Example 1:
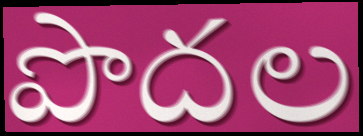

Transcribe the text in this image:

పొదల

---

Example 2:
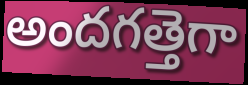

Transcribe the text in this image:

అందగత్తెగా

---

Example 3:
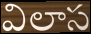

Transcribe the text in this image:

విలాస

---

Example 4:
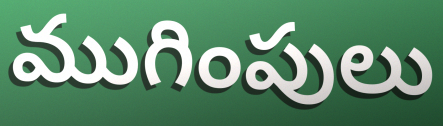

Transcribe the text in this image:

ముగింపులు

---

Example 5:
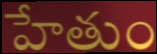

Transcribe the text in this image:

హేతుం